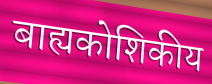
बाह्यकोशिकीय